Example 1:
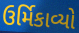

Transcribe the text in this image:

ઉર્મિકાવ્યો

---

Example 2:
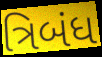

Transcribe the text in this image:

ત્રિબંધ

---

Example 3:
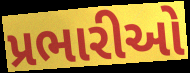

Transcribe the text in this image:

પ્રભારીઓ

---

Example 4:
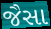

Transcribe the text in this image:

જૈસા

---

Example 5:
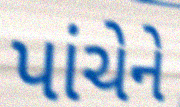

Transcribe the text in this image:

પાંચેને